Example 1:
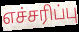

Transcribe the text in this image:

எச்சரிப்பு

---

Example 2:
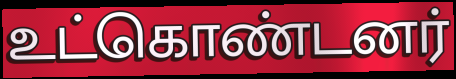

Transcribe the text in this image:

உட்கொண்டனர்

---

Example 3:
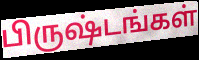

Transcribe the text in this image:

பிருஷ்டங்கள்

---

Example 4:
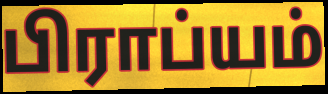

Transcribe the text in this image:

பிராப்யம்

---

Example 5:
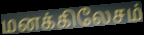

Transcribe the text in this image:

மனக்கிலேசம்